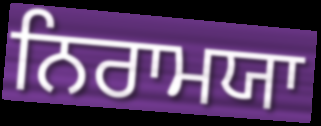
ਨਿਰਾਮਯਾ